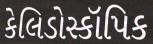
કેલિડોસ્કૉપિક